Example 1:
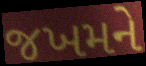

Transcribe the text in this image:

જખમને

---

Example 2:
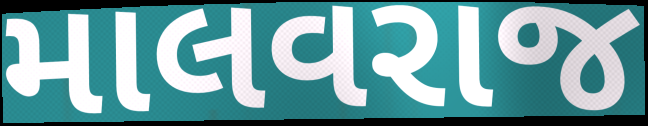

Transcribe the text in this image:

માલવરાજ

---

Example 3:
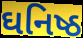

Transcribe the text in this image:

ઘનિષ્ઠ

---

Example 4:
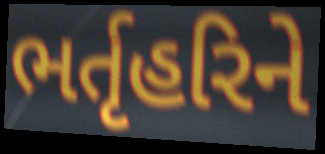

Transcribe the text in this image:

ભર્તૃહરિને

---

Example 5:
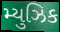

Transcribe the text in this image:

મ્યુઝિક